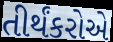
તીર્થંકરોએ